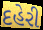
દહેરી